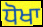
ਧੋਖਾ